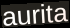
aurita